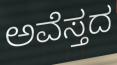
ಅವೆಸ್ತದ